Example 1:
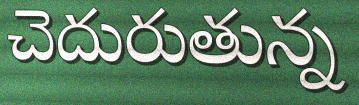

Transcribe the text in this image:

చెదురుతున్న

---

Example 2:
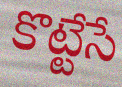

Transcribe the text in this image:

కొట్టేసే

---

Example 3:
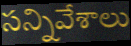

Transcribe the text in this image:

సన్నివేశాలు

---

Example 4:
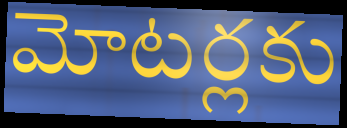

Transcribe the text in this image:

మోటర్లకు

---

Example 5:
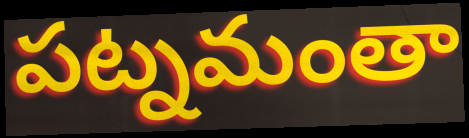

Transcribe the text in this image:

పట్నమంతా